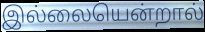
இல்லையென்றால்